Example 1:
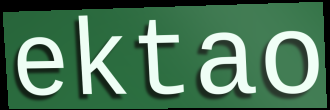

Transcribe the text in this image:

ektao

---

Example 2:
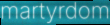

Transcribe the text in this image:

martyrdom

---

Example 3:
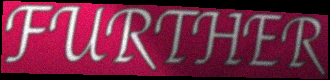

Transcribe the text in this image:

FURTHER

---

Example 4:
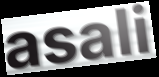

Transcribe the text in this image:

asali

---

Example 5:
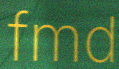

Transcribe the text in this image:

fmd